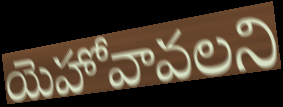
యెహోవావలని